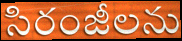
సిరంజీలను